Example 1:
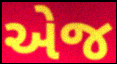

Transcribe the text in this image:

એજ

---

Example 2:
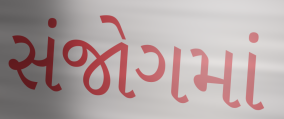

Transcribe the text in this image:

સંજોગમાં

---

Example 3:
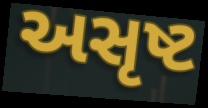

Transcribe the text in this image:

અસૃષ્ટ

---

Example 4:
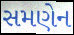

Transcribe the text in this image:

સમણેન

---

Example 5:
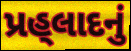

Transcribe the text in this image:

પ્રહ્‌લાદનું